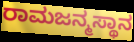
ರಾಮಜನ್ಮಸ್ಥಾನ